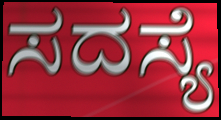
ಸದಸ್ಯೆ